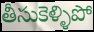
తీసుకెళ్ళిపో